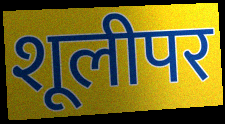
शूलीपर